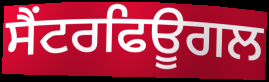
ਸੈਂਟਰਫਿਊਗਲ